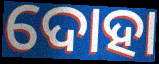
ଦୋହା